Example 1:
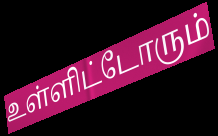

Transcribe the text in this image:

உள்ளிட்டோரும்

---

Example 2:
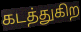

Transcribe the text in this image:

கடத்துகிற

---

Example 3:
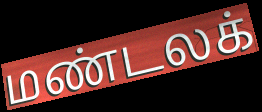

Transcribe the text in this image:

மண்டலக்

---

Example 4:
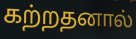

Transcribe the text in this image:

கற்றதனால்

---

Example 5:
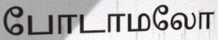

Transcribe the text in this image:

போடாமலோ